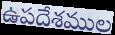
ఉపదేశముల